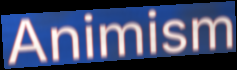
Animism